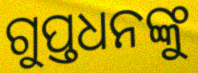
ଗୁପ୍ତଧନଙ୍କୁ